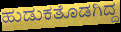
ಹುಡುಕತೊಡಗಿದ್ದ